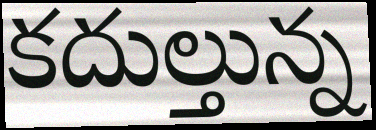
కదుల్తున్న